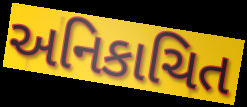
અનિકાચિત